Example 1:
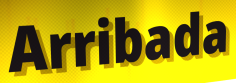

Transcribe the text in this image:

Arribada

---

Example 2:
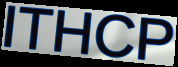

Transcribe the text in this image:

ITHCP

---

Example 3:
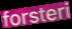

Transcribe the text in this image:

forsteri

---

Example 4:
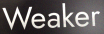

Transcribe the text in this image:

Weaker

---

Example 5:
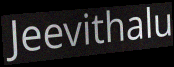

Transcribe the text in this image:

Jeevithalu